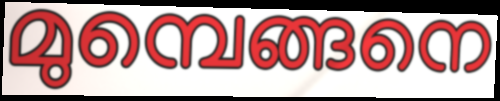
മുമ്പെങ്ങനെ